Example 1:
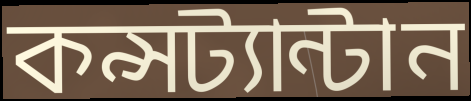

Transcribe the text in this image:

কন্সট্যান্টান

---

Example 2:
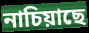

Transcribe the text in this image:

নাচিয়াছে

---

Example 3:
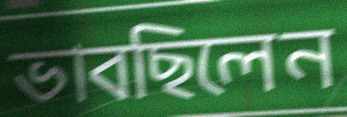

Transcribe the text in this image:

ভাবছিলেন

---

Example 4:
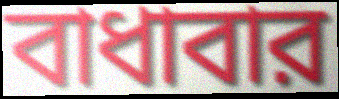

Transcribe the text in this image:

বাধাবার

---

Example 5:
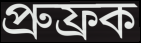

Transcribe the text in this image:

প্রুফ্রক